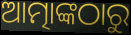
ଆତ୍ମାଙ୍କଠାରୁ